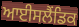
ਆਈਸਲੈਂਡਿਕ